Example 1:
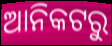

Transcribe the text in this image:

ଆନିକଟରୁ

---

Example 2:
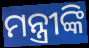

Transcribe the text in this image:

ମନ୍ତ୍ରୀଙ୍କି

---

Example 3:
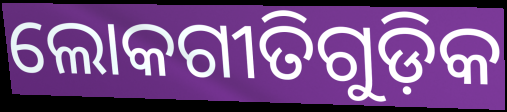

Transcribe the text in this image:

ଲୋକଗୀତିଗୁଡ଼ିକ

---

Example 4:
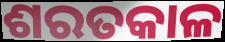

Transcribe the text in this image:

ଶରତକାଳ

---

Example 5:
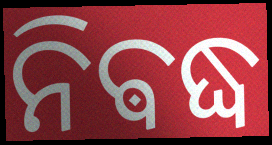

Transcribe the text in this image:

ନିଵଦ୍ଧ